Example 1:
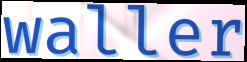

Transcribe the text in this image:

waller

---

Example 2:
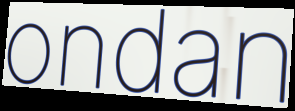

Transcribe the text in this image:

ondan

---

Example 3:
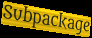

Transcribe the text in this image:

Subpackage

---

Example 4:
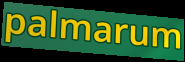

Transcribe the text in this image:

palmarum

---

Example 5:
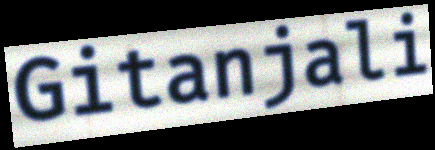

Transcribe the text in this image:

Gitanjali